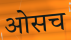
ओसच